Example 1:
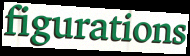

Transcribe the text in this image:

figurations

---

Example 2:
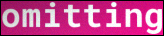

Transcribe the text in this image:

omitting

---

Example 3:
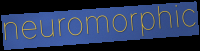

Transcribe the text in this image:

neuromorphic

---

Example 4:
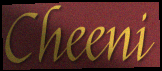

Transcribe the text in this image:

Cheeni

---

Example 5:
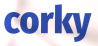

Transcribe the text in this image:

corky